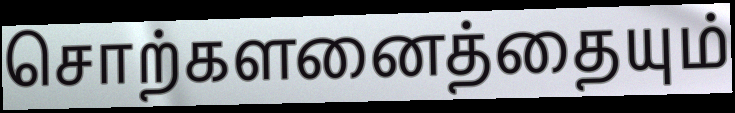
சொற்களனைத்தையும்